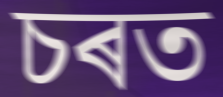
চৰত